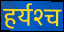
हर्यश्च